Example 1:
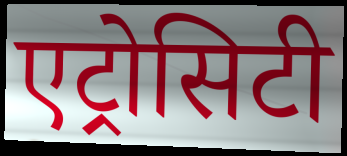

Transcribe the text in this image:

एट्रोसिटी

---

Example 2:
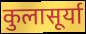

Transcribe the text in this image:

कुलासूर्या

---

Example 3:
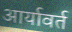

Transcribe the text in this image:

आर्यावर्त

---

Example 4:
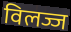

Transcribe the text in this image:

विलज्ज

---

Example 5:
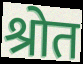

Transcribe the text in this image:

श्रोत